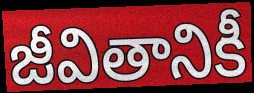
జీవితానికీ